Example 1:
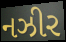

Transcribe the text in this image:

નઝીર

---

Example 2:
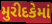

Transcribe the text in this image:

મુરીદકેમાં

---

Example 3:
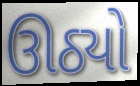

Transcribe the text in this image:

ઊઠ્યો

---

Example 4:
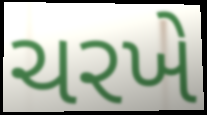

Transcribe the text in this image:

ચરખે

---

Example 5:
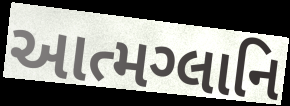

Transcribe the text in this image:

આત્મગ્લાનિ